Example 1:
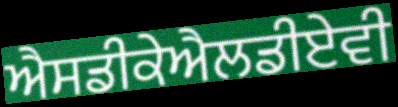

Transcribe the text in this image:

ਐਸਡੀਕੇਐਲਡੀਏਵੀ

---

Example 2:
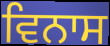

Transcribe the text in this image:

ਵਿਨਾਸ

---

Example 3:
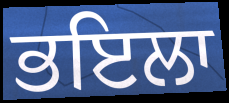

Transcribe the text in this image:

ਭਇਲਾ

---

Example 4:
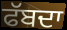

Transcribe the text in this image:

ਫੱਬਦਾ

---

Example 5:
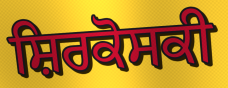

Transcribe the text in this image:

ਸ਼ਿਰਕੋਸਕੀ